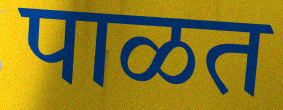
पाळत